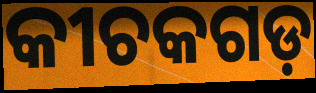
କୀଚକଗଡ଼